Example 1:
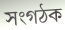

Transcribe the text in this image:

সংগঠক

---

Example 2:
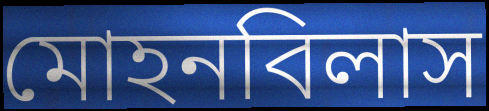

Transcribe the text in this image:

মোহনবিলাস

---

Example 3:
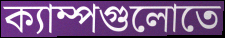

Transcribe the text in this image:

ক্যাম্পগুলোতে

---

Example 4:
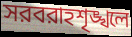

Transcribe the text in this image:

সরবরাহশৃঙ্খলে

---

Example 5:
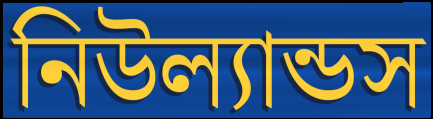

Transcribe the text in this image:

নিউল্যান্ডস